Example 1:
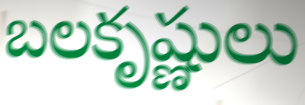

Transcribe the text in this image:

బలకృష్ణులు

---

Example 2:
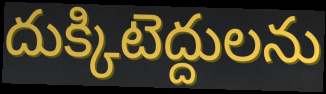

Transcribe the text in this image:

దుక్కిటెద్దులను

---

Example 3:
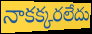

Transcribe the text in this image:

నాకక్కరలేదు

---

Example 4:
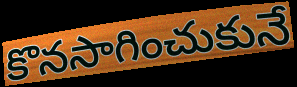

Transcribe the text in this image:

కొనసాగించుకునే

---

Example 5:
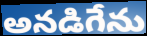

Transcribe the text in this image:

అనడిగేను